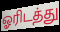
ஓரிடத்து